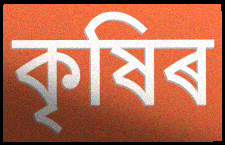
কৃষিৰ